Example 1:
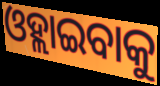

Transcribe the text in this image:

ଓହ୍ଲାଇବାକୁ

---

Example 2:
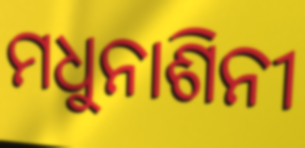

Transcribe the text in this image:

ମଧୁନାଶିନୀ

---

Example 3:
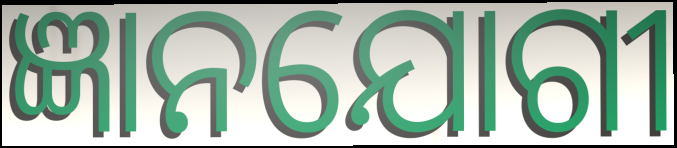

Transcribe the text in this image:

ଜ୍ଞାନଯୋଗୀ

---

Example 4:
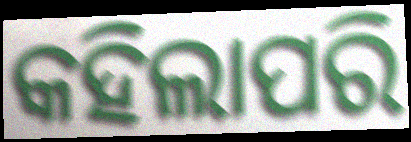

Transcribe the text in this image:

କହିଲାପରି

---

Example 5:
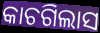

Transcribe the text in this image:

କାଚଗିଲାସ